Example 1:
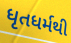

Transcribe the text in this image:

ધૃતધર્મથી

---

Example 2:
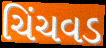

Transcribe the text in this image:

ચિંચવડ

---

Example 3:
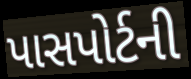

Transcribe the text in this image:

પાસપોર્ટની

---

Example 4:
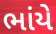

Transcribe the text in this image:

ભાંયે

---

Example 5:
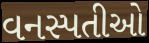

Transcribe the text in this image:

વનસ્પતીઓ